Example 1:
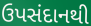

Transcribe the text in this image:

ઉપસંદાનથી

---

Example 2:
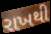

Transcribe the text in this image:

રાખથી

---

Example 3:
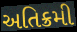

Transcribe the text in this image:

અતિક્રમી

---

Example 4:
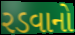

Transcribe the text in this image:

રડવાનો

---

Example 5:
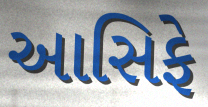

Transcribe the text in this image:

આસિફે